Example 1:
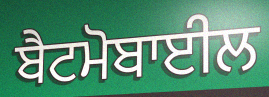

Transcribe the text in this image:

ਬੈਟਮੋਬਾਈਲ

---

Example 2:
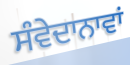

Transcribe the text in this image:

ਸੰਵੇਦਾਨਾਵਾਂ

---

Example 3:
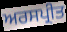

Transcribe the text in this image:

ਅਰਸਪ੍ਰੀਤ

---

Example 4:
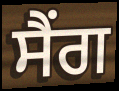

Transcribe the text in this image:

ਸੈਂਗ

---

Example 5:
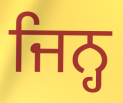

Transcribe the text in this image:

ਜਿਨ੍ਹ